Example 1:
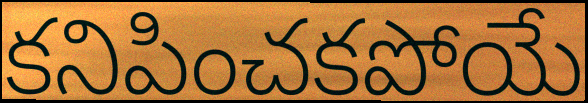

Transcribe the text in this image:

కనిపించకపోయే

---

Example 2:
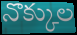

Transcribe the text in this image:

నొక్కుల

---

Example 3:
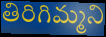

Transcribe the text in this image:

తిరిగిమ్మని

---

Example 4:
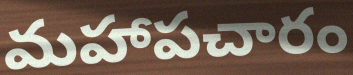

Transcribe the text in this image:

మహాపచారం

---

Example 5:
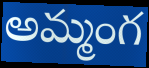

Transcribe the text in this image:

అమ్మంగ